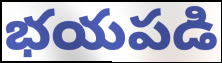
భయపడి